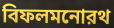
বিফলমনোরথ